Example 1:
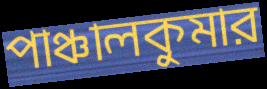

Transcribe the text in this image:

পাঞ্চালকুমার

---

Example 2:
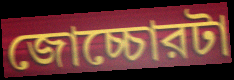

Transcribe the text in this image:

জোচ্চোরটা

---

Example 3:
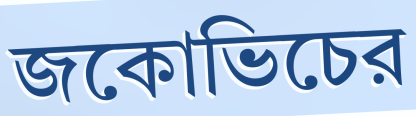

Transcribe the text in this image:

জকোভিচের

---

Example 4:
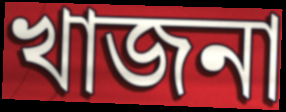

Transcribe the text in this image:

খাজনা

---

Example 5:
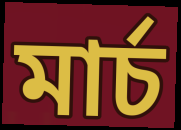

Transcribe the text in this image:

মার্চ